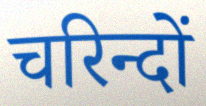
चरिन्दों